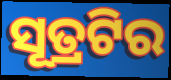
ସୂତ୍ରଟିର